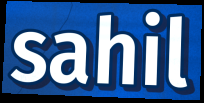
sahil